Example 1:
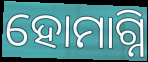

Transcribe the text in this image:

ହୋମାଗ୍ନି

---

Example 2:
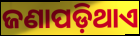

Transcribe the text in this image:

ଜଣାପଡ଼ିଥାଏ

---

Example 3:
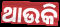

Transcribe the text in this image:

ଥାଉକି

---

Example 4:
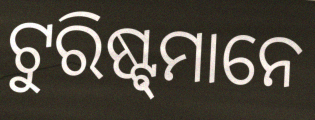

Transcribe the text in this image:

ଟୁରିଷ୍ଟ୍‍ମାନେ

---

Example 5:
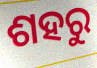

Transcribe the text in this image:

ଶହରୁ